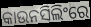
କାଉନସିଲିଂରେ